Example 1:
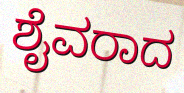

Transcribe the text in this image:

ಶೈವರಾದ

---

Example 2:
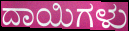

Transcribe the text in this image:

ದಾಯಿಗಳು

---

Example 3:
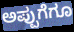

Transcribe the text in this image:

ಅಪ್ಪುಗೆಗೂ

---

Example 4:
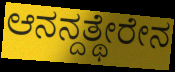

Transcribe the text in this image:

ಆನನ್ದತ್ಥೇರೇನ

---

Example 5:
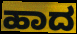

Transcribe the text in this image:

ಹಾದ